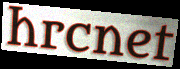
hrcnet